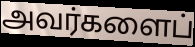
அவர்களைப்